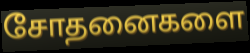
சோதனைகளை